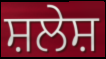
ਸ਼ਲੇਸ਼